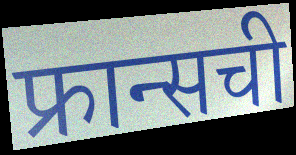
फ्रान्सची